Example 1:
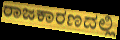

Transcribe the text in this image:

ರಾಜಕಾರಣದಲ್ಲಿ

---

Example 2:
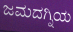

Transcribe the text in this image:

ಜಮದಗ್ನಿಯ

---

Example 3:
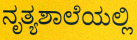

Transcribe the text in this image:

ನೃತ್ಯಶಾಲೆಯಲ್ಲಿ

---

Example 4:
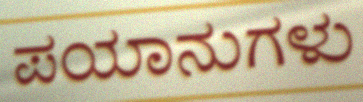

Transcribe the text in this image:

ಪಯಾನುಗಳು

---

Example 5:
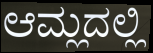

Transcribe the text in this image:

ಆಮ್ಲದಲ್ಲಿ